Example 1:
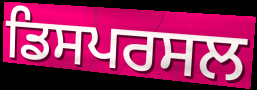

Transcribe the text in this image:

ਡਿਸਪਰਸਲ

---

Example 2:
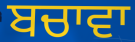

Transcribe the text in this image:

ਬਚਾਵਾ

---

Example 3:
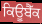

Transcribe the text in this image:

ਕਿਊਬੈੱਕ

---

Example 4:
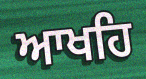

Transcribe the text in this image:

ਆਖਹਿ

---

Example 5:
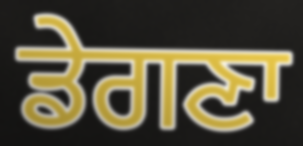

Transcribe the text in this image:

ਡੇਗਣਾ